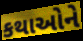
કથાઓને